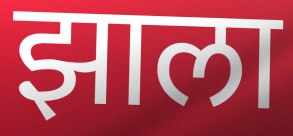
झाला